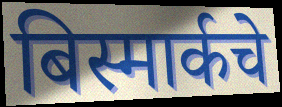
बिस्मार्कचे